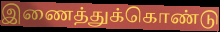
இணைத்துக்கொண்டு